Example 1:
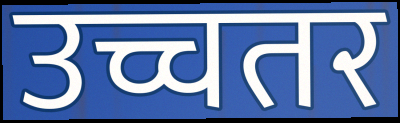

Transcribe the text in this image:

उच्चतर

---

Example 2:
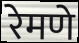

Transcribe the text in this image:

रेमणे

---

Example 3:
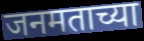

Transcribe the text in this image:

जनमताच्या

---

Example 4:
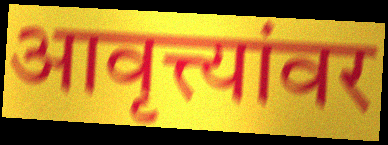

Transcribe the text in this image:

आवृत्त्यांवर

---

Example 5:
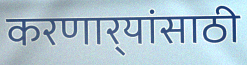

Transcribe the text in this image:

करणार्‍यांसाठी